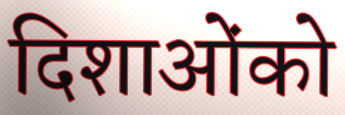
दिशाओंको